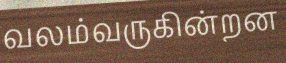
வலம்வருகின்றன